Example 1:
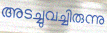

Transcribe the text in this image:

അടച്ചുവച്ചിരുന്നു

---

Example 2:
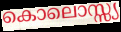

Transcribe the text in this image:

കൊലൊസ്സ്യ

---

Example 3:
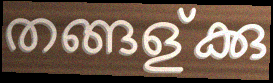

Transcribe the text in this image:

തങ്ങള്ക്കു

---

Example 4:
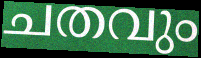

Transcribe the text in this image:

ചതവും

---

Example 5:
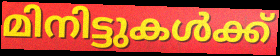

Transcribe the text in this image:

മിനിട്ടുകൾക്ക്